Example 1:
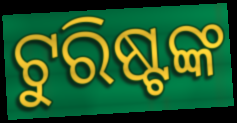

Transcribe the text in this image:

ଟୁରିଷ୍ଟଙ୍କ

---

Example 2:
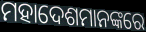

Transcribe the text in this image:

ମହାଦେଶମାନଙ୍କରେ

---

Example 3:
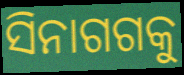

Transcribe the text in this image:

ସିନାଗଗକୁ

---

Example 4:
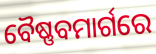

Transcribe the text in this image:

ବୈଷ୍ଣବମାର୍ଗରେ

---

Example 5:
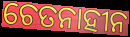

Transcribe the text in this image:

ଚେତନାହୀନ